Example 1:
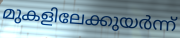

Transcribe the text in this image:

മുകളിലേക്കുയർന്ന്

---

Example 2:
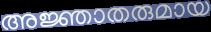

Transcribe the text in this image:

അജ്ഞാതരുമായ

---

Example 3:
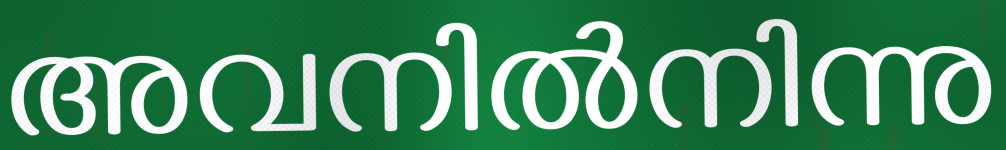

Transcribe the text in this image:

അവനിൽനിന്നു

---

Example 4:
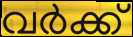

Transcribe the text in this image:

വർക്ക്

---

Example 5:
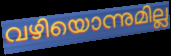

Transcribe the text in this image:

വഴിയൊന്നുമില്ല